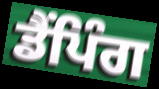
ਡੈਂਪਿੰਗ